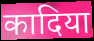
कादिया